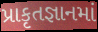
પ્રાકૃતજ્ઞાનમાં